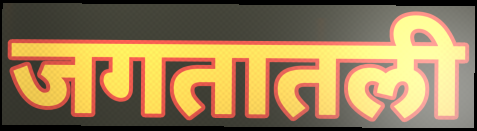
जगतातली